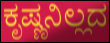
ಕೃಷ್ಣನಿಲ್ಲದ